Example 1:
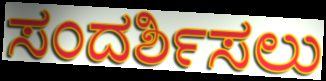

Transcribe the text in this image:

ಸಂದರ್ಶಿಸಲು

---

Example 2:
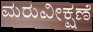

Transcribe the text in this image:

ಮರುವೀಕ್ಷಣೆ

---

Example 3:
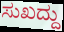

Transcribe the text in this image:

ಸುಖದ್ದು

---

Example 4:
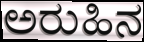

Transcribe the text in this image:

ಅರುಹಿನ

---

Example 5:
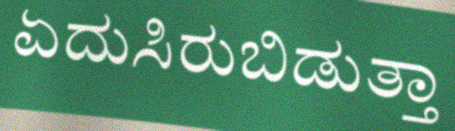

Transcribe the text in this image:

ಏದುಸಿರುಬಿಡುತ್ತಾ